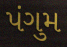
પંગુમ